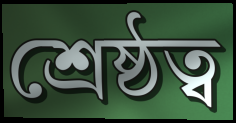
শ্রেষ্ঠত্ব